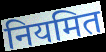
नियमित